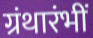
ग्रंथारंभीं